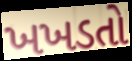
ખખડતો